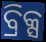
ବ୍ରିକ୍ସ